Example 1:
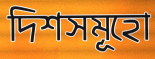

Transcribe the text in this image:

দিশসমূহো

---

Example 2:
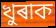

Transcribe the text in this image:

খুৰাক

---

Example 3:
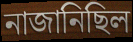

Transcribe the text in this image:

নাজানিছিল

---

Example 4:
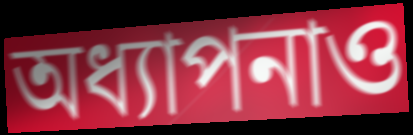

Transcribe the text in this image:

অধ্যাপনাও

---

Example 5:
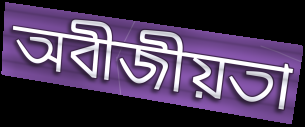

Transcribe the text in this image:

অবীজীয়তা